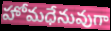
హోమధేనువుగా